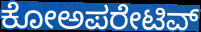
ಕೋಅಪರೇಟಿವ್